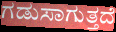
ಗಡುಸಾಗುತ್ತದೆ